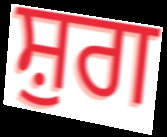
ਸ਼ੁਗ